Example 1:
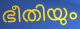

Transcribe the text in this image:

ഭീതിയും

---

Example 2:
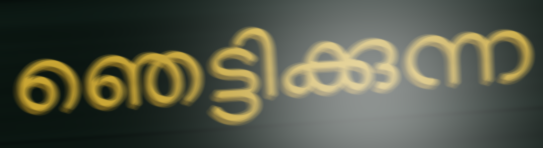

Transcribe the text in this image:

ഞെട്ടിക്കുന്ന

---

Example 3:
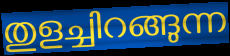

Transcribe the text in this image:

തുളച്ചിറങ്ങുന്ന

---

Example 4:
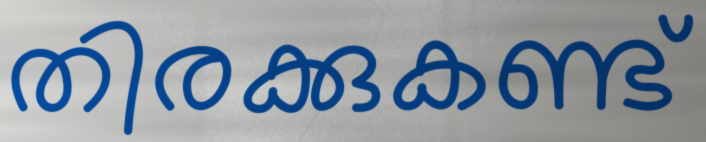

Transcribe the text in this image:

തിരക്കുകണ്ട്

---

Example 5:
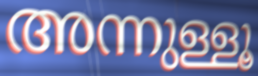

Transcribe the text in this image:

അന്നുള്ളൂ